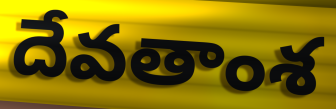
దేవతాంశ